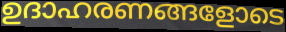
ഉദാഹരണങ്ങളോടെ